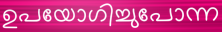
ഉപയോഗിച്ചുപോന്ന